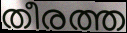
തീരത്ത